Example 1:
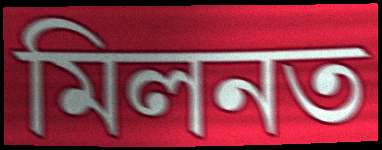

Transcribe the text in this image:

মিলনত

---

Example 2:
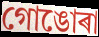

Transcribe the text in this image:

গোঙোৰা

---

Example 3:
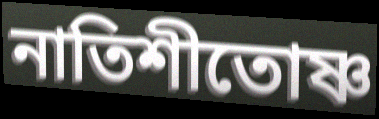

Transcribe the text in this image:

নাতিশীতোষ্ণ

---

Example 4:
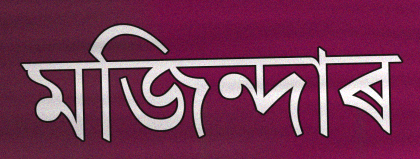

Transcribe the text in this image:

মজিন্দাৰ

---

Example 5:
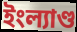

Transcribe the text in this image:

ইংল্যাণ্ড